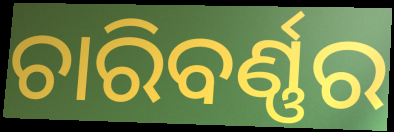
ଚାରିବର୍ଣ୍ଣର